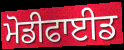
ਮੋਡੀਫਾਈਡ